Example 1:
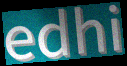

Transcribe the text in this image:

edhi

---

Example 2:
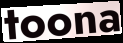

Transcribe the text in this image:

toona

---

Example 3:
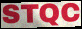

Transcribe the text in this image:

STQC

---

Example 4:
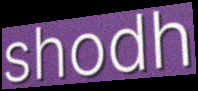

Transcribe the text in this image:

shodh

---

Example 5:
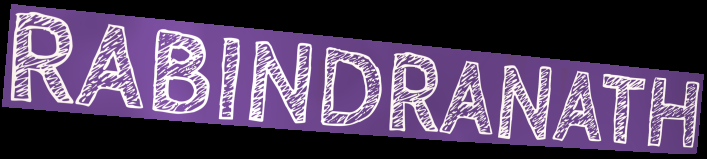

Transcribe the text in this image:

RABINDRANATH